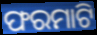
ଫରମାଟି